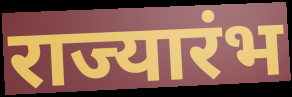
राज्यारंभ